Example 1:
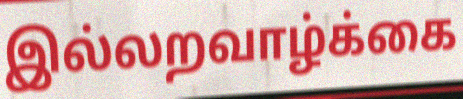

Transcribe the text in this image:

இல்லறவாழ்க்கை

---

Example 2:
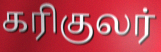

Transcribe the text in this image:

கரிகுலர்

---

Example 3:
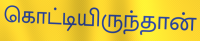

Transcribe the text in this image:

கொட்டியிருந்தான்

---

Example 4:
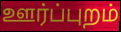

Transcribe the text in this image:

ஊர்ப்புறம்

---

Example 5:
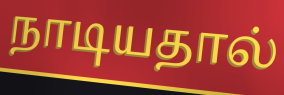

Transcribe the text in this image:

நாடியதால்